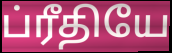
ப்ரீதியே